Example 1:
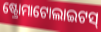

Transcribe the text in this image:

ଷ୍ଟ୍ରୋମାଟୋଲାଇଟସ୍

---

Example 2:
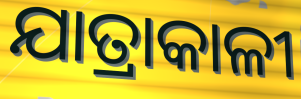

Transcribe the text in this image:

ଯାତ୍ରାକାଳୀ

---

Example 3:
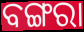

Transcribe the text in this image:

ବଙ୍ଗରା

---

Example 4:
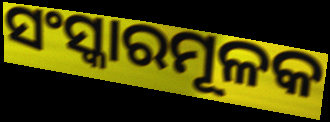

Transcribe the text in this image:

ସଂସ୍କାରମୂଳକ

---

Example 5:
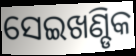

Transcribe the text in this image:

ସେଇଖଣ୍ଡିକ